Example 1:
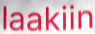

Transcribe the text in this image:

laakiin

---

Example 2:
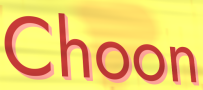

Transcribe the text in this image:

Choon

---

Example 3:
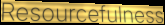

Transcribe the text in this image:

Resourcefulness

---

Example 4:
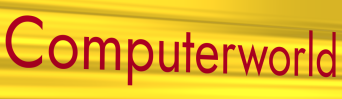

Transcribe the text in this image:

Computerworld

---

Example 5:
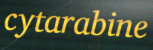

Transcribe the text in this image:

cytarabine